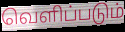
வெளிப்படும்